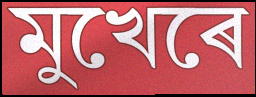
মুখেৰে